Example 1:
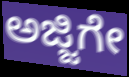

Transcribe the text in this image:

ಅಜ್ಜಿಗೇ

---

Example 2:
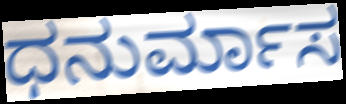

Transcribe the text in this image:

ಧನುರ್ಮಾಸ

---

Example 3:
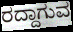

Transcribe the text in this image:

ರದ್ದಾಗುವ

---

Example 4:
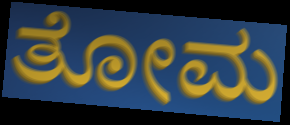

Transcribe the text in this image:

ತೋಮ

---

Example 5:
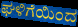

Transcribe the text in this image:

ಘಳಿಗೆಯಿಂದ